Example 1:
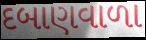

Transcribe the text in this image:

દબાણવાળા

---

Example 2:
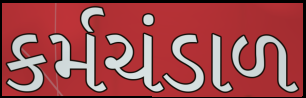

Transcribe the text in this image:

કર્મચંડાળ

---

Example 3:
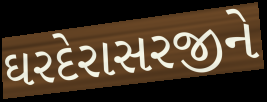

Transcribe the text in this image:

ઘરદેરાસરજીને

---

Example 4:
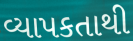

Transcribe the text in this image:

વ્યાપકતાથી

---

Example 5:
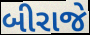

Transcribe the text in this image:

બીરાજે